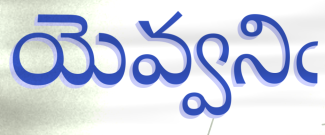
యెవ్వనిఁ